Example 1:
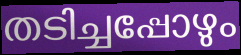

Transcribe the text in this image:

തടിച്ചപ്പോഴും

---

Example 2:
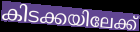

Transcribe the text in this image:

കിടക്കയിലേക്ക്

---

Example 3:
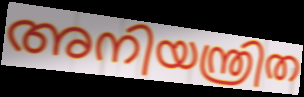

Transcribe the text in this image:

അനിയന്ത്രിത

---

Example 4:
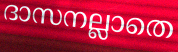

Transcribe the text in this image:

ദാസനല്ലാതെ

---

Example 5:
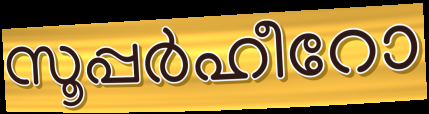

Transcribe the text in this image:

സൂപ്പർഹീറോ